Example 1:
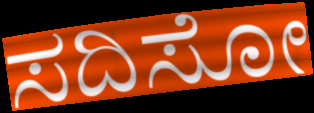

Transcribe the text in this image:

ಸದಿಸೋ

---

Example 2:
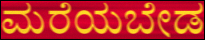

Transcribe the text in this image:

ಮರೆಯಬೇಡ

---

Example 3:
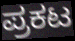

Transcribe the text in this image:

ಪ್ರಕಟ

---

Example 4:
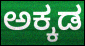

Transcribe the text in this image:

ಅಕ್ಕಡ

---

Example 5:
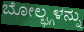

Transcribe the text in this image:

ಬೋಲ್ಟ್ಗಳನ್ನು